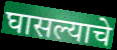
घासल्याचे